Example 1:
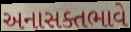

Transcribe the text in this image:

અનાસક્તભાવે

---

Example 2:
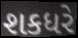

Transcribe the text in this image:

શકધરે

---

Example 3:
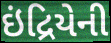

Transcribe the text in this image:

ઇંદ્રિયેની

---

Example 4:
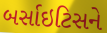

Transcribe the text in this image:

બર્સાઇટિસને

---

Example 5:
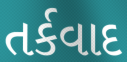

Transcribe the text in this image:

તર્કવાદ